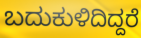
ಬದುಕುಳಿದಿದ್ದರೆ